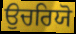
ਉਚਰਿਯੋ